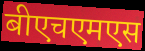
बीएचएमएस